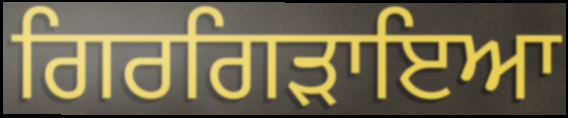
ਗਿਰਗਿੜਾਇਆ